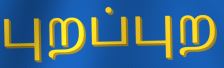
புறப்புற